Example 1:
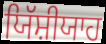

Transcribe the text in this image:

ਯਿੱਸ਼ੀਯਾਹ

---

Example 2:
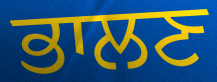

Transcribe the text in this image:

ਭਾਲਣ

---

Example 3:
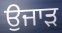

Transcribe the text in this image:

ਉੁਜਾੜ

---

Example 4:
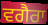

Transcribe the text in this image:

ਵਗੈਰਾ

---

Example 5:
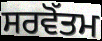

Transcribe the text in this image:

ਸਰਵੋੱਤਮ